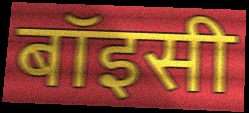
बॉइसी